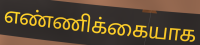
எண்ணிக்கையாக